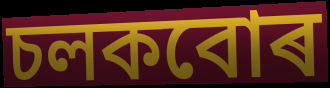
চলকবোৰ